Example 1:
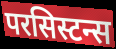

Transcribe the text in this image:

परसिस्टन्स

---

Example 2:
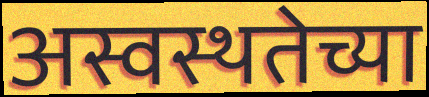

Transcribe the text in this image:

अस्वस्थतेच्या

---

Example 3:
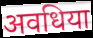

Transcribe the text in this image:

अवधिया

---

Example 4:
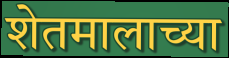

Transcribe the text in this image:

शेतमालाच्या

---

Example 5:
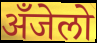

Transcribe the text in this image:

अँजेलो